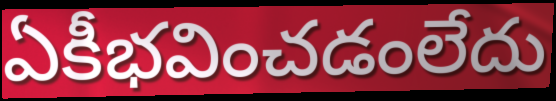
ఏకీభవించడంలేదు